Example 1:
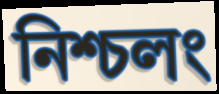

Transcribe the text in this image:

নিশ্চলং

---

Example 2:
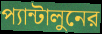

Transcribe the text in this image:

প্যান্টালুনের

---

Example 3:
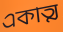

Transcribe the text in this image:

একাত্ম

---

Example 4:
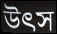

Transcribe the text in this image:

উৎস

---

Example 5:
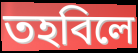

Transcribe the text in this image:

তহবিলে